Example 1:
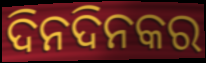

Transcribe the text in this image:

ଦିନଦିନକର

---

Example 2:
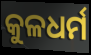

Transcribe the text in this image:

କୁଳଧର୍ମ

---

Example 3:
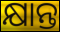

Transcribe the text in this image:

କ୍ଷାନ୍ତ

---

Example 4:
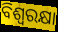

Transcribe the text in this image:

ବିଶ୍ୱରକ୍ଷା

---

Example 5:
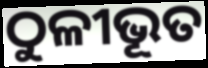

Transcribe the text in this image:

ଠୁଳୀଭୂତ